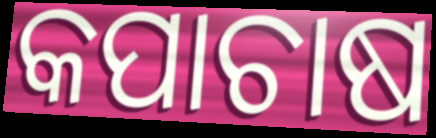
କପାଚାଷ